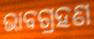
ଭାବଗ୍ରହଣ